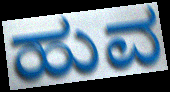
ಹುವ